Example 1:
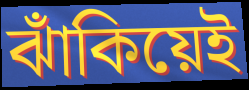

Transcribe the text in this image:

ঝাঁকিয়েই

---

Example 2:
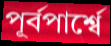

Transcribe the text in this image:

পূর্বপার্শ্বে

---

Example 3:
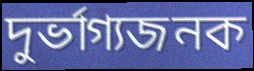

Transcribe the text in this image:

দুর্ভাগ্যজনক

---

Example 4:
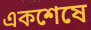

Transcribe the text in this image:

একশেষে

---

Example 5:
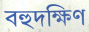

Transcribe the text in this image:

বহুদক্ষিণ